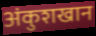
अंकुशखान